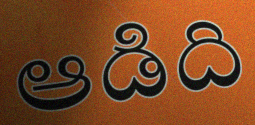
ఆడిది